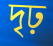
দৃঢ়